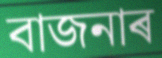
বাজনাৰ